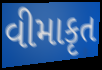
વીમાકૃત